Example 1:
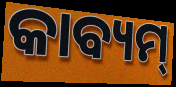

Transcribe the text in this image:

କାବ୍ୟମ୍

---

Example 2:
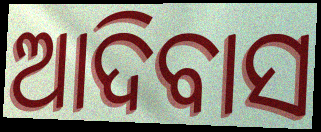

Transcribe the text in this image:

ଆଦିବାସ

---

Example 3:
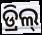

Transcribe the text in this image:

ଡ୍ରିଲ୍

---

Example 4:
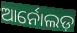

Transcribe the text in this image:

ଆର୍ନୋଲଡ଼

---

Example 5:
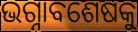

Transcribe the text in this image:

ଭଗ୍ନାବଶେଷକୁ